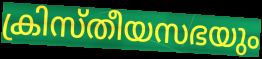
ക്രിസ്തീയസഭയും